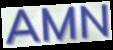
AMN